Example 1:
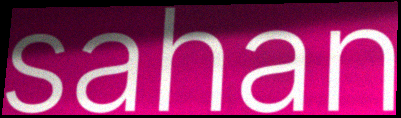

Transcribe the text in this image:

sahan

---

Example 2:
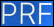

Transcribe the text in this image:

PRF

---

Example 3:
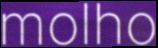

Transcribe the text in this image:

molho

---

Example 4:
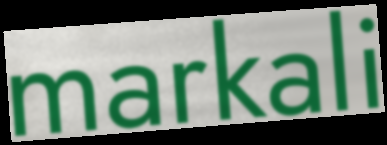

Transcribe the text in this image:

markali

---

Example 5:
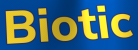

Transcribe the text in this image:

Biotic